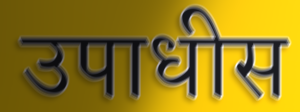
उपाधीस